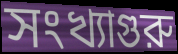
সংখ্যাগুরু